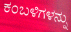
ಕಂಬಳಿಗಳನ್ನು